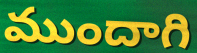
ముందాగి